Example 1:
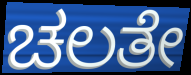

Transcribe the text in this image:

ಚಲತೇ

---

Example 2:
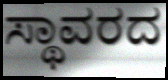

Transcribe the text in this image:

ಸ್ಥಾವರದ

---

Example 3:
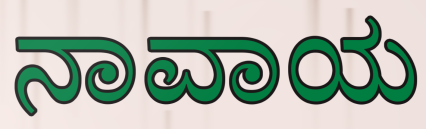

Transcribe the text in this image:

ನಾವಾಯ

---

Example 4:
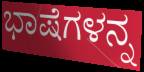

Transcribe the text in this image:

ಭಾಷೆಗಳನ್ನ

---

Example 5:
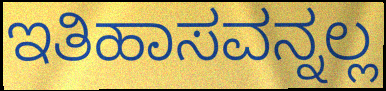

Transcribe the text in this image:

ಇತಿಹಾಸವನ್ನಲ್ಲ